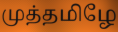
முத்தமிழே